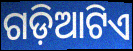
ଗଡ଼ିଆଟିଏ